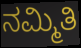
ನಮ್ಮಿತಿ